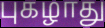
புகழாது